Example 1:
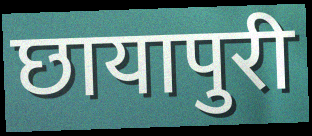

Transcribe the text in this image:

छायापुरी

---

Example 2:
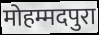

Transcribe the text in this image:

मोहम्मदपुरा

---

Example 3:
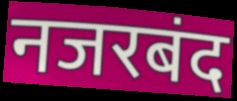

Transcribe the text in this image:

नजरबंद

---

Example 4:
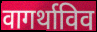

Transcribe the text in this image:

वागर्थाविव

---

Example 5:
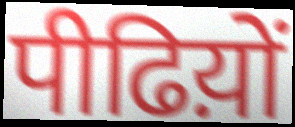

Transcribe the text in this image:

पीढिय़ों